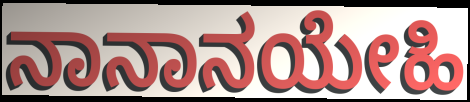
ನಾನಾನಯೇಹಿ